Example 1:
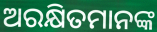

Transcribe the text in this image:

ଅରକ୍ଷିତମାନଙ୍କ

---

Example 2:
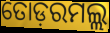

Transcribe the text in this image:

ତୋଡ଼ରମଲ୍ଲ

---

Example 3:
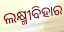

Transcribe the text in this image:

ଲକ୍ଷ୍ମୀବିହାର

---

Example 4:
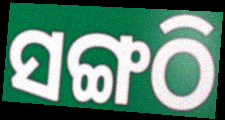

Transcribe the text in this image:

ସଙ୍ଗଠି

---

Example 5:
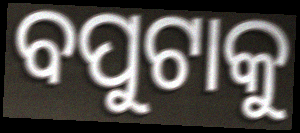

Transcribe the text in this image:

ବପୁଟାକୁ